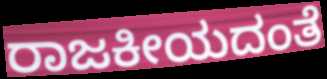
ರಾಜಕೀಯದಂತೆ